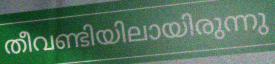
തീവണ്ടിയിലായിരുന്നു